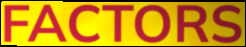
FACTORS